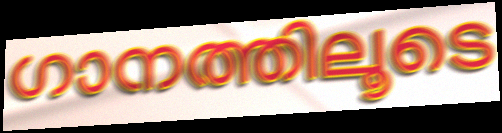
ഗാനത്തിലൂടെ